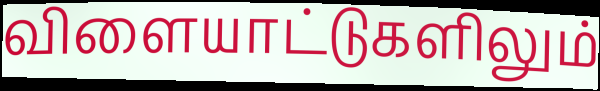
விளையாட்டுகளிலும்